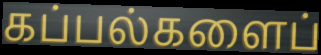
கப்பல்களைப்